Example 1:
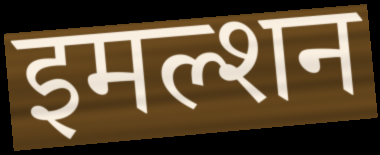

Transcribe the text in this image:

इमल्शन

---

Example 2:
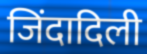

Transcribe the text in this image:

जिंदादिली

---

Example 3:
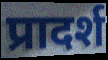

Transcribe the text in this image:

प्रादर्श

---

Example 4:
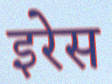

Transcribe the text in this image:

इरेस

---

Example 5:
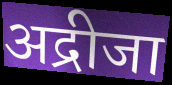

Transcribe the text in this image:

अद्रीजा